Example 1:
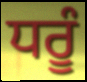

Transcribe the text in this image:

ਧਰੂੰ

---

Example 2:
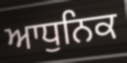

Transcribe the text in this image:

ਆਧੁਨਿਕ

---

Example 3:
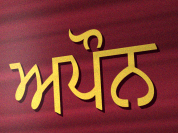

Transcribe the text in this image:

ਅਪੌਨ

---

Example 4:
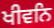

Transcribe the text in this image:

ਖੀਵਨਿ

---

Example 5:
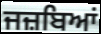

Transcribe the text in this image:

ਜਜ਼ਬਿਆਂ